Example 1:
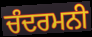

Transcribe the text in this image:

ਚੰਦਰਮਨੀ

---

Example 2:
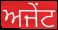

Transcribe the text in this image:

ਅਜੇਂਟ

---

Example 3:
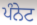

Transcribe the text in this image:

ਪੰਨੇਟ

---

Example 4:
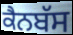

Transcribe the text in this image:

ਕੈਨਬੱਸ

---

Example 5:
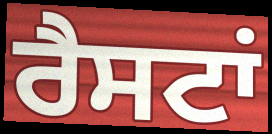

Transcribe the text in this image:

ਰੈਸਟਾਂ